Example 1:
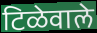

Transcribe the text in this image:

टिळेवाले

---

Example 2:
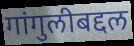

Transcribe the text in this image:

गांगुलीबद्दल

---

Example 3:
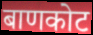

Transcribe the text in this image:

बाणकोट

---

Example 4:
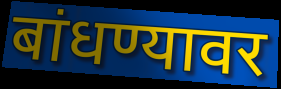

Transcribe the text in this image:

बांधण्यावर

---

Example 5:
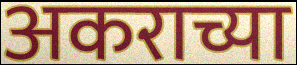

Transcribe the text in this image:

अकराच्या